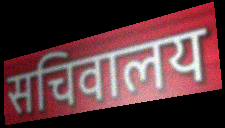
सचिवालय